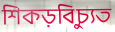
শিকড়বিচ্যুত